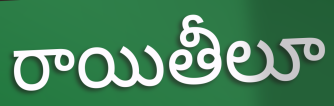
రాయితీలూ